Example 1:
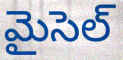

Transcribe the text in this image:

మైసెల్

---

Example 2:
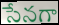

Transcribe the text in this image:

సేనగా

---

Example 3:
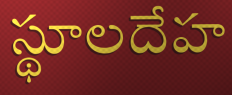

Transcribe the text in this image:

స్థూలదేహ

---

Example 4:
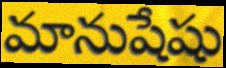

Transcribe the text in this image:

మానుషేషు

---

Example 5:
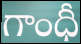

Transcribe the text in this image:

గాంధీ